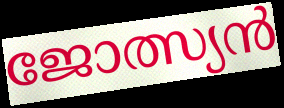
ജോത്സ്യൻ